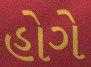
હોગે